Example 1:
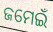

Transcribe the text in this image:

ଜମେଇଁ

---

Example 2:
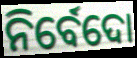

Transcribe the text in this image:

ନିର୍ବେଦୋ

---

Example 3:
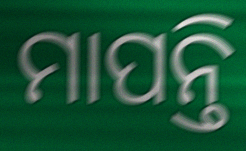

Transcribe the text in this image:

ମାପନ୍ତି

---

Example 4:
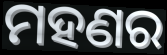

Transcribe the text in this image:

ମହଣର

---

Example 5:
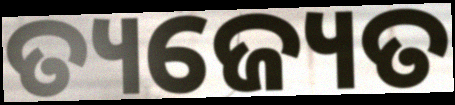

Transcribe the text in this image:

ତ୍ୟଜ୍ୟେତ